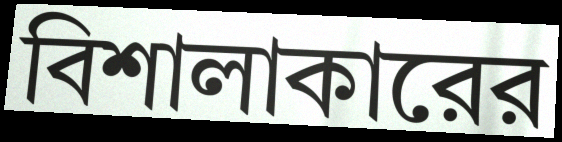
বিশালাকারের